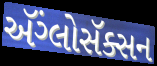
ઍંગ્લોસૅક્સન